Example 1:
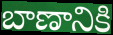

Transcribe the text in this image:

బాణానికి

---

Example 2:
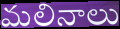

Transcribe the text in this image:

మలినాలు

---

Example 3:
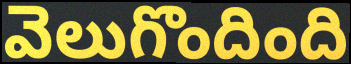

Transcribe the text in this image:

వెలుగొందింది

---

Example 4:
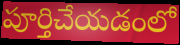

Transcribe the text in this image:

పూర్తిచేయడంలో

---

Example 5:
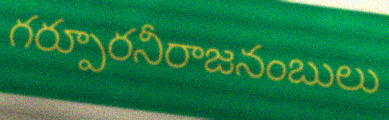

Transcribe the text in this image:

గర్పూరనీరాజనంబులు